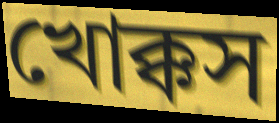
খোক্কস